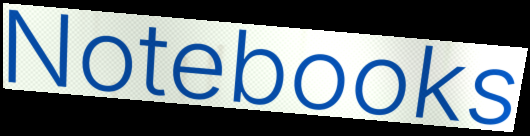
Notebooks